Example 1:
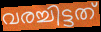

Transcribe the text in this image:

വരച്ചിട്ടത്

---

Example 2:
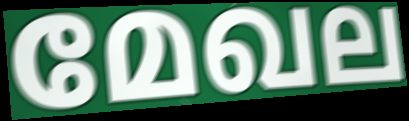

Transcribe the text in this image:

മേഖല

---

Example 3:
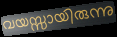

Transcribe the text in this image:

വയസ്സായിരുന്നു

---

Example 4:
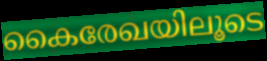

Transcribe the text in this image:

കൈരേഖയിലൂടെ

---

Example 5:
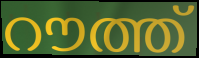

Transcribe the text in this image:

റൗത്ത്